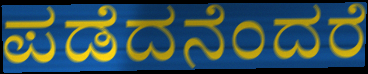
ಪಡೆದನೆಂದರೆ